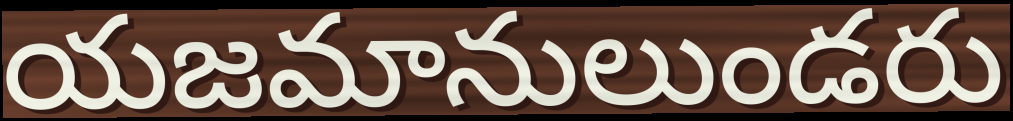
యజమానులుండరు